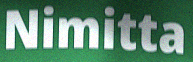
Nimitta